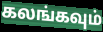
கலங்கவும்